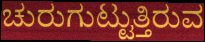
ಚುರುಗುಟ್ಟುತ್ತಿರುವ